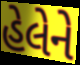
હેલેને